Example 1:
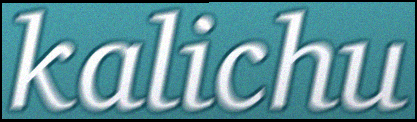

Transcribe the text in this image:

kalichu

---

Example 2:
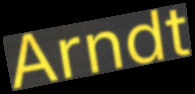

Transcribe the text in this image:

Arndt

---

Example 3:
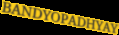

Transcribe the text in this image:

BANDYOPADHYAY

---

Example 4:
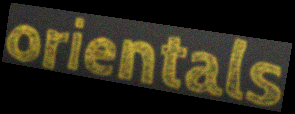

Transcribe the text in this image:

orientals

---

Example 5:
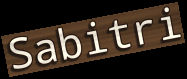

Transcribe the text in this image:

Sabitri